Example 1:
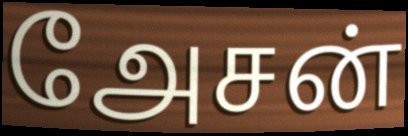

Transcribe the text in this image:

அேசன்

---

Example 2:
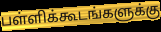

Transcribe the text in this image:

பள்ளிக்கூடங்களுக்கு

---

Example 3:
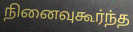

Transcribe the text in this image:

நினைவுகூர்ந்த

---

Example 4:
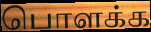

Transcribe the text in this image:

பொளக்க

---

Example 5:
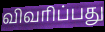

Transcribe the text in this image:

விவரிப்பது